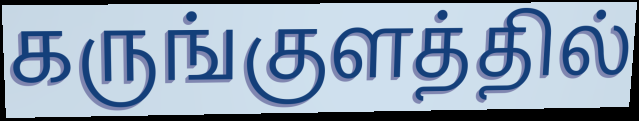
கருங்குளத்தில்